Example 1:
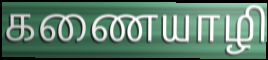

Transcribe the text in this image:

கணையாழி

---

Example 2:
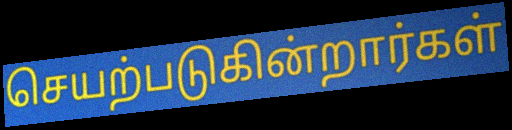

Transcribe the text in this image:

செயற்படுகின்றார்கள்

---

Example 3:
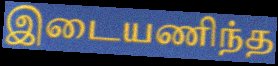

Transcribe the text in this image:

இடையணிந்த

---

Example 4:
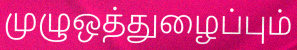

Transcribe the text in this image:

முழுஒத்துழைப்பும்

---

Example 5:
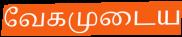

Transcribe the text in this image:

வேகமுடைய